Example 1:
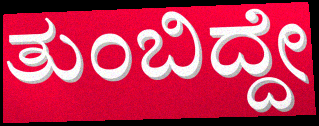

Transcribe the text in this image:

ತುಂಬಿದ್ದೇ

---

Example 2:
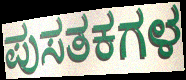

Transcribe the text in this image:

ಪುಸತಕಗಳ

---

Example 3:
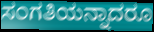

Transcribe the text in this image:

ಸಂಗತಿಯನ್ನಾದರೂ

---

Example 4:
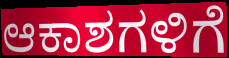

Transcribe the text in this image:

ಆಕಾಶಗಳಿಗೆ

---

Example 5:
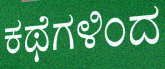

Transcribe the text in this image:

ಕಥೆಗಳಿಂದ